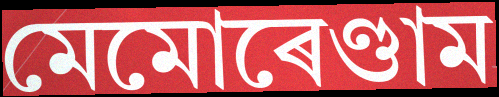
মেমোৰেণ্ডাম